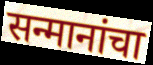
सन्मानांचा